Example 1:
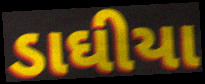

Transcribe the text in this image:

ડાઘીયા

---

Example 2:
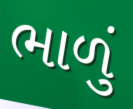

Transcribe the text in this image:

ભાળું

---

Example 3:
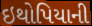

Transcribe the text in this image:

ઇથોપિયાની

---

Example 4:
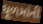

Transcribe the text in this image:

ધૂળમાંની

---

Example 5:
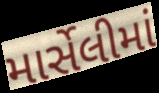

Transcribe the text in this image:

માર્સેલીમાં